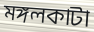
মঙ্গলকাটা